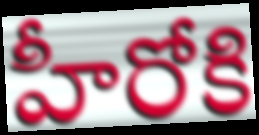
హీరోకి